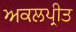
ਅਕਲਪ੍ਰੀਤ